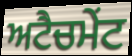
ਅਟੈਚਮੇਂਟ